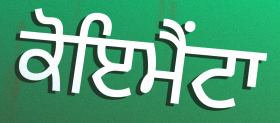
ਕੋਇਮੈਂਟਾ